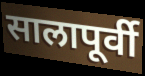
सालापूर्वी